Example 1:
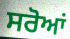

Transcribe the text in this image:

ਸਰੋਆਂ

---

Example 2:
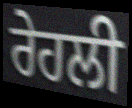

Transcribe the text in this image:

ਰੇਹਲੀ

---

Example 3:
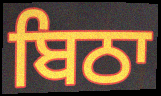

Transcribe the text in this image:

ਬਿਠਾ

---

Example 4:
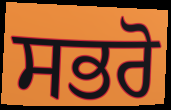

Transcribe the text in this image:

ਸਭਰੋ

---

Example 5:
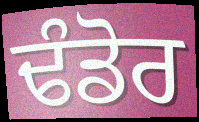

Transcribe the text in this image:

ਢੰਡੋਰ